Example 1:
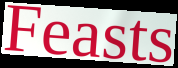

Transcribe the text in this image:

Feasts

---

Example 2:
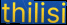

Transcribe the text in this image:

thilisi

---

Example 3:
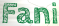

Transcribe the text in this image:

Fani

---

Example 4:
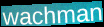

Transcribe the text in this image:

wachman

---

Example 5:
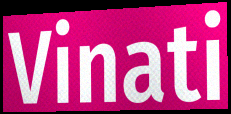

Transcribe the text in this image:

Vinati